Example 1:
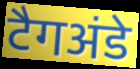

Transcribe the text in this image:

टैगअंडे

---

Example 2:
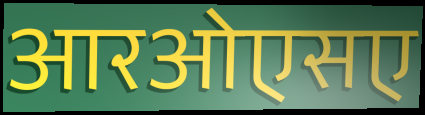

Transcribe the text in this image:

आरओएसए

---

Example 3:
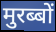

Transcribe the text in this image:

मुरब्बों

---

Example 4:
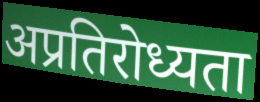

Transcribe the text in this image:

अप्रतिरोध्यता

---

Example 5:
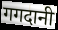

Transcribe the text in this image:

गगदानी